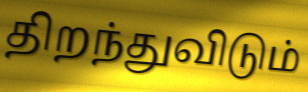
திறந்துவிடும்